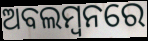
ଅବଲମ୍ବନରେ